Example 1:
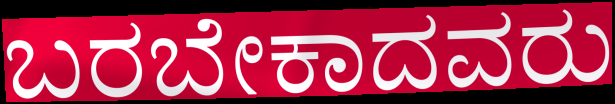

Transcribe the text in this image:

ಬರಬೇಕಾದವರು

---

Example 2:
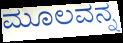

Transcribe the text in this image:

ಮೂಲವನ್ನ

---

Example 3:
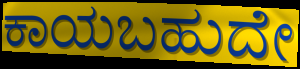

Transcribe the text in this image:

ಕಾಯಬಹುದೇ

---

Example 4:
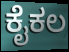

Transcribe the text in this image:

ಕೈಕಲ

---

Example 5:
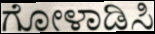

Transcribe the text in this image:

ಗೋಳಾಡಿಸಿ